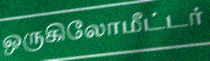
ஒருகிலோமீட்டர்